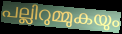
പല്ലിറുമ്മുകയും